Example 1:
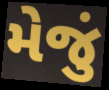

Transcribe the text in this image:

મેજું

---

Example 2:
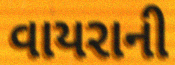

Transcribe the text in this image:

વાયરાની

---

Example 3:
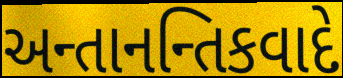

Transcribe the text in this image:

અન્તાનન્તિકવાદે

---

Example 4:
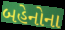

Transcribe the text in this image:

બહેનોના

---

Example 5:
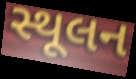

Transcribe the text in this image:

સ્થૂલન